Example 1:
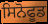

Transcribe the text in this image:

ਸਿਨੋਫੂਡ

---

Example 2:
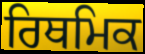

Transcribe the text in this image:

ਰਿਥਮਿਕ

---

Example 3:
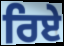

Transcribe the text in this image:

ਰਿਏ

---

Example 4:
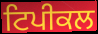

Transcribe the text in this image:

ਟਿਪੀਕਲ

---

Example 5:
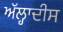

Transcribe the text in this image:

ਅੱਲ੍ਹਾਦੀਸ